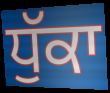
ਧੁੱਕਾ